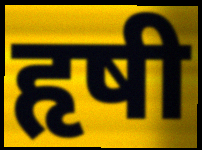
हृषी